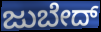
ಜುಬೇದ್